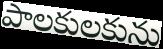
పాలకులకును